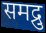
समद्रु